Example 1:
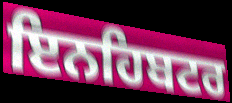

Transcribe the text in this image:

ਇਨਹਿਬਟਰ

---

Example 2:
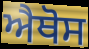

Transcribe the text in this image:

ਐਥੋਸ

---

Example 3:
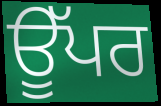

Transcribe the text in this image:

ਊੱਪਰ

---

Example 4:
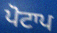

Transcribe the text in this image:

ਪੋਟਾਪ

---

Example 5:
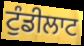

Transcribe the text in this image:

ਟੁੰਡੀਲਾਟ